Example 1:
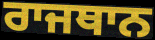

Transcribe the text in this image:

ਰਾਜਥਾਨ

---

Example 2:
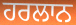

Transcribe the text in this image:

ਹਰਲਾਨ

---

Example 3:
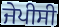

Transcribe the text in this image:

ਜੇਪੀਸੀ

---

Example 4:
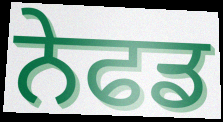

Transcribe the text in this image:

ਨੇਫਡ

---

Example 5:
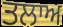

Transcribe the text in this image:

ਤਲਾਅ